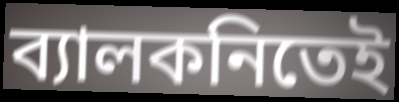
ব্যালকনিতেই